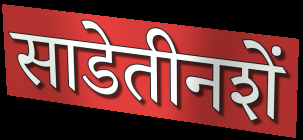
साडेतीनशें